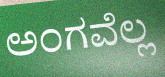
ಅಂಗವೆಲ್ಲ